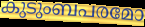
കുടുംബപരമോ